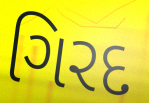
ગિરદ